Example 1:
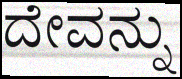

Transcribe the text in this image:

ದೇವನ್ನು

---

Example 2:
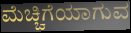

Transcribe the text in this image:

ಮೆಚ್ಚಿಗೆಯಾಗುವ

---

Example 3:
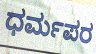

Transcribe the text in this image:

ಧರ್ಮಪರ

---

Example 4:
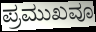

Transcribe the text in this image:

ಪ್ರಮುಖವೂ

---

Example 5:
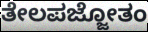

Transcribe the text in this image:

ತೇಲಪಜ್ಜೋತಂ